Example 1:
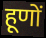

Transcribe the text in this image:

हूणों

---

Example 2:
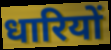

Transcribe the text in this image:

धारियों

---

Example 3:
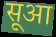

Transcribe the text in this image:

सूआ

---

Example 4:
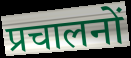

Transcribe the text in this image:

प्रचालनों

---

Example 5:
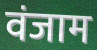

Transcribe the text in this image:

वंजाम